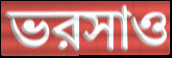
ভরসাও